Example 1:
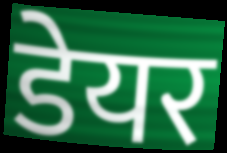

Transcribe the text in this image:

डेयर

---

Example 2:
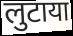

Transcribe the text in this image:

लुटाया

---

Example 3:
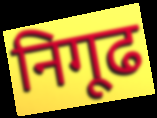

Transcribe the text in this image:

निगूढ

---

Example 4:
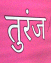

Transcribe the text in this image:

तुरंज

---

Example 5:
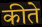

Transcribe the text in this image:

कीते